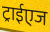
ट्राईएज